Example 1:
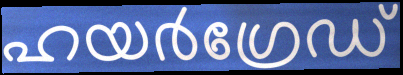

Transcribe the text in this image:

ഹയർഗ്രേഡ്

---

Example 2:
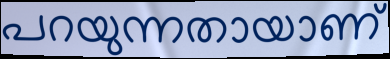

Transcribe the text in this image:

പറയുന്നതായാണ്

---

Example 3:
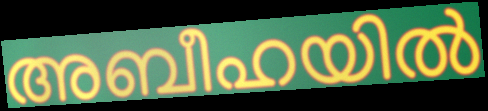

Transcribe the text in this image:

അബീഹയിൽ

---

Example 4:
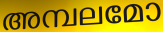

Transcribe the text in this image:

അമ്പലമോ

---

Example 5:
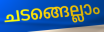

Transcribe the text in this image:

ചടങ്ങെല്ലാം